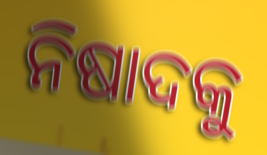
ନିଷାଦକୁ